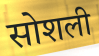
सोशली